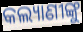
କଲ୍ୟାଣୀଙ୍କୁ